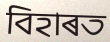
বিহাৰত